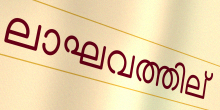
ലാഘവത്തില്